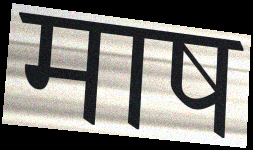
माष